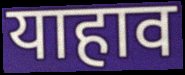
याहाव